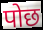
पोछ